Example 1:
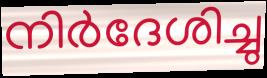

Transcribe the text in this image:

നിർദേശിച്ചു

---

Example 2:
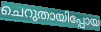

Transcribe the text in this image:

ചെറുതായിപ്പോയ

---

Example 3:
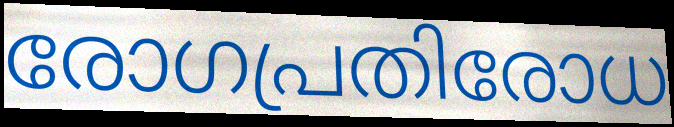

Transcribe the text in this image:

രോഗപ്രതിരോധ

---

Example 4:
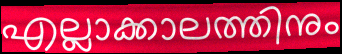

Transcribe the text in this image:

എല്ലാക്കാലത്തിനും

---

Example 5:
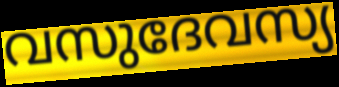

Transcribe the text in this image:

വസുദേവസ്യ